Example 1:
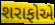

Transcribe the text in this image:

શરાફોએ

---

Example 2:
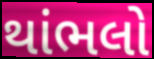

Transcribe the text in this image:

થાંભલો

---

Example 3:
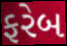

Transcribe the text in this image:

ફરેબ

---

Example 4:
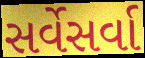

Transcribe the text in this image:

સર્વેસર્વા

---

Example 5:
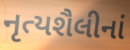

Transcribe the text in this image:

નૃત્યશૈલીનાં